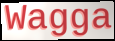
Wagga